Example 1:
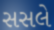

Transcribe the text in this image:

સસલે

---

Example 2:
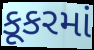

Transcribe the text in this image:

કૂકરમાં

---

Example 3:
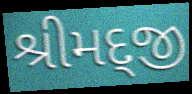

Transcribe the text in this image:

શ્રીમદ્જી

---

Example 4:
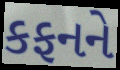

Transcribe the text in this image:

કફનને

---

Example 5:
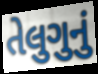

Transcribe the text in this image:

તેલુગુનું